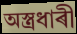
অস্ত্ৰধাৰী